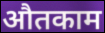
औतकाम